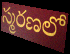
స్మరణలో